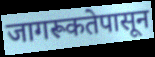
जागरूकतेपासून